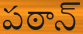
పఠాన్